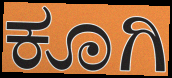
ಕೂಗಿ